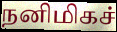
நனிமிகச்